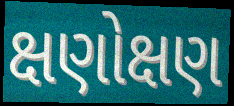
ક્ષણોક્ષણ